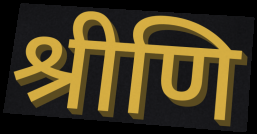
श्रीणि